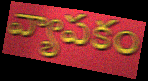
వ్యాపకం